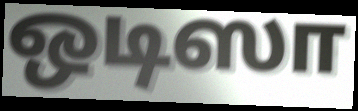
ஒடிஸா